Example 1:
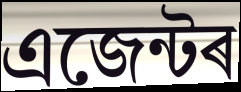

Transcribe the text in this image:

এজেন্টৰ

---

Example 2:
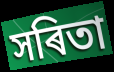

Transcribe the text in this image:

সৰিতা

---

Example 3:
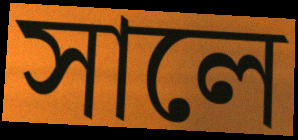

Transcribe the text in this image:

সালে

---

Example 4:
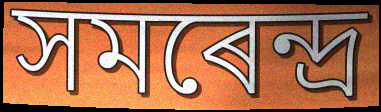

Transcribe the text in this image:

সমৰেন্দ্ৰ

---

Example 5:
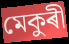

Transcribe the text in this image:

মেকুৰী